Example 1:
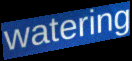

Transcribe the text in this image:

watering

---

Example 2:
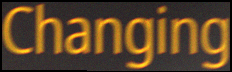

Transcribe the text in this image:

Changing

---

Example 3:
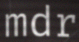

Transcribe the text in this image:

mdr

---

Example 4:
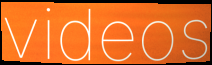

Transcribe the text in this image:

videos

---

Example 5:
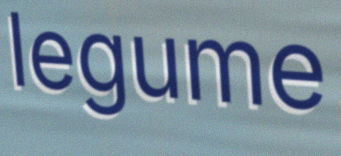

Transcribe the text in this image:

legume